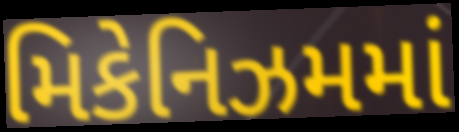
મિકેનિઝમમાં